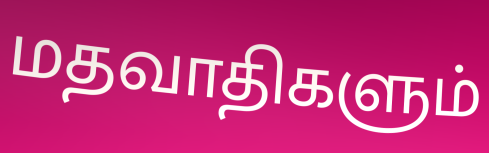
மதவாதிகளும்